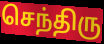
செந்திரு